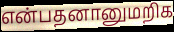
என்பதனானுமறிக